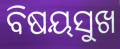
ବିଷୟସୁଖ